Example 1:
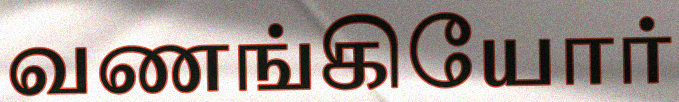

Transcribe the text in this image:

வணங்கியோர்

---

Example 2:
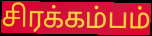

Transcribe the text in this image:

சிரக்கம்பம்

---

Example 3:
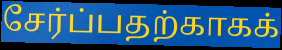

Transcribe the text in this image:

சேர்ப்பதற்காகக்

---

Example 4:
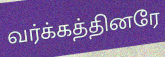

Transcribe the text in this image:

வர்க்கத்தினரே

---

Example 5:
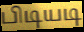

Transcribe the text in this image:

பிடியடி